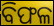
ବିଫଳ